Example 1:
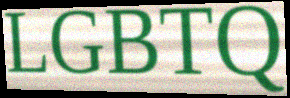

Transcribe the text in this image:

LGBTQ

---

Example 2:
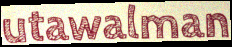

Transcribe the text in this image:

utawalman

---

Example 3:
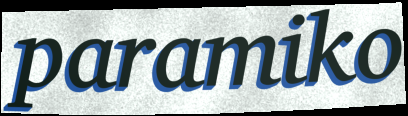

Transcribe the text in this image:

paramiko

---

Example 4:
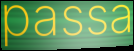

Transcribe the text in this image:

passa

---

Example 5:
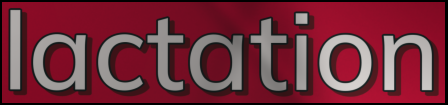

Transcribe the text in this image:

lactation